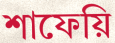
শাফেয়ি